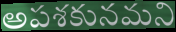
అపశకునమని